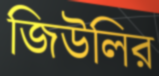
জিউলির